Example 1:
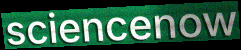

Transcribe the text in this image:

sciencenow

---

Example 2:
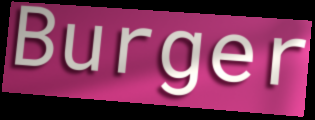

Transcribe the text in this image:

Burger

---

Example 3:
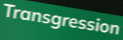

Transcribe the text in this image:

Transgression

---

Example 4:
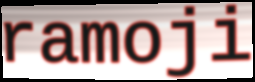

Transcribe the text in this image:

ramoji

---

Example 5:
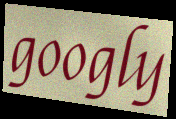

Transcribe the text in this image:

googly